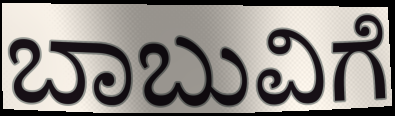
ಬಾಬುವಿಗೆ